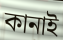
কানাই